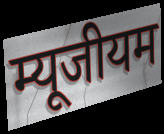
म्यूजीयम